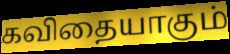
கவிதையாகும்